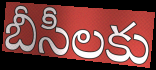
బీసీలకు